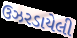
ઉઝરડાયેલી